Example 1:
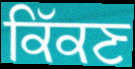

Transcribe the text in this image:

ਕਿੱਕਣ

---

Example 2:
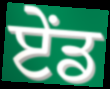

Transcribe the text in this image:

ਏੰਡ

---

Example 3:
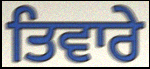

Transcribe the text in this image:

ਤਿਵਾਰੇ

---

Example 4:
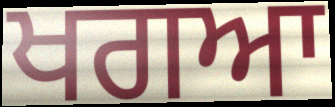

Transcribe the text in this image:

ਖਗਆ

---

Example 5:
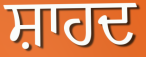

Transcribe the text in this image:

ਸ਼ਾਹਦ